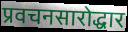
प्रवचनसारोद्धार